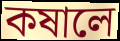
কষালে